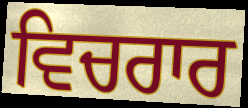
ਵਿਚਰਾਰ